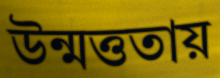
উন্মত্ততায়